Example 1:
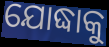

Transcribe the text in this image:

ଯୋଦ୍ଧାକୁ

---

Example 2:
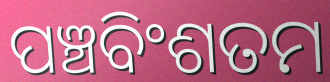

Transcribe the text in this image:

ପଞ୍ଚବିଂଶତମ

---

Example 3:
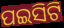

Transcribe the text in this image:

ପଇସିଟି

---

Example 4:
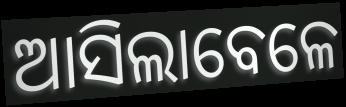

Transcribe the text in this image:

ଆସିଲାବେଳେ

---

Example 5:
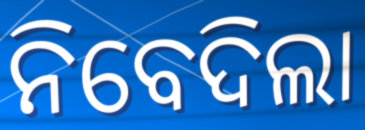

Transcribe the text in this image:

ନିବେଦିଲା